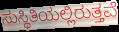
ಸುಸ್ಥಿತಿಯಲ್ಲಿರುತ್ತವೆ